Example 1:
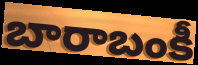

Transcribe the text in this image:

బారాబంకీ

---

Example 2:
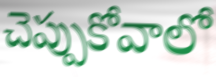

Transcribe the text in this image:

చెప్పుకోవాలో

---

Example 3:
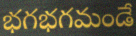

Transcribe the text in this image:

భగభగమండే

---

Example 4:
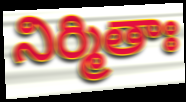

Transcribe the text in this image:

నిర్మితాః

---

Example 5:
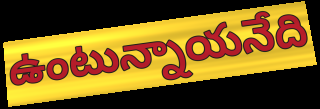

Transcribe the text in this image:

ఉంటున్నాయనేది